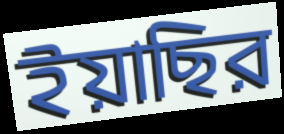
ইয়াছির